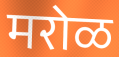
मरोळ